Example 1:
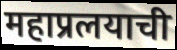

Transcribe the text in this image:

महाप्रलयाची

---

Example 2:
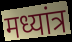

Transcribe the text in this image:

मध्यांत्र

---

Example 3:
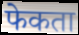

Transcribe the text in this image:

फेकता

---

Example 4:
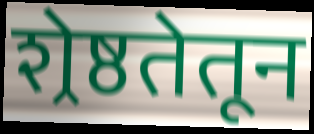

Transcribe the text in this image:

श्रेष्ठतेतून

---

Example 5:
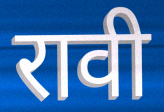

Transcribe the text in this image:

रावी